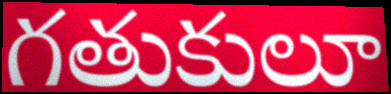
గతుకులూ